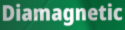
Diamagnetic